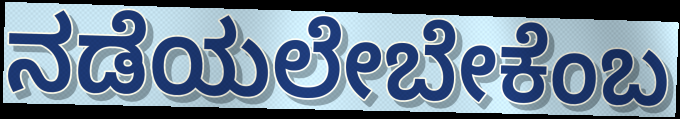
ನಡೆಯಲೇಬೇಕೆಂಬ